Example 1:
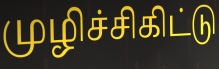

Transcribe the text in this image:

முழிச்சிகிட்டு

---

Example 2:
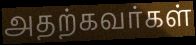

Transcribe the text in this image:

அதற்கவர்கள்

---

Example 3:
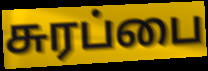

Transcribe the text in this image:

சுரப்பை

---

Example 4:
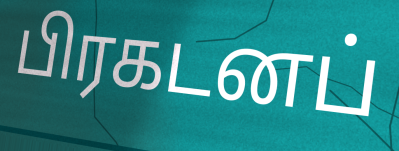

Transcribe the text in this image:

பிரகடனப்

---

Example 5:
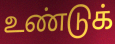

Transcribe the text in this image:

உண்டுக்